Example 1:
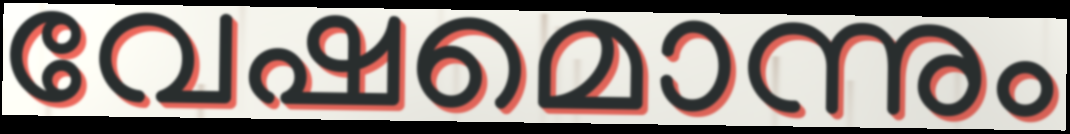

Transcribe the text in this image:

വേഷമൊന്നും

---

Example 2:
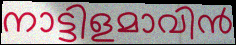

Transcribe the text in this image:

നാട്ടിളമാവിൻ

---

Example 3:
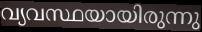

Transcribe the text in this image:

വ്യവസ്ഥയായിരുന്നു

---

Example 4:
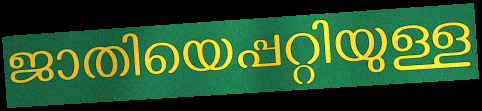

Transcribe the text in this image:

ജാതിയെപ്പറ്റിയുള്ള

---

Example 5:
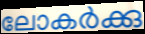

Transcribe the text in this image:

ലോകർക്കു